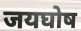
जयघोष